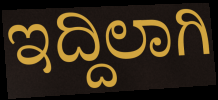
ಇದ್ದಿಲಾಗಿ